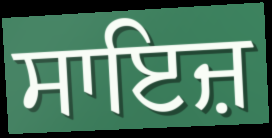
ਸਾਇਜ਼